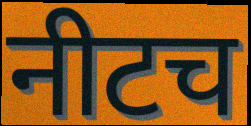
नीटच